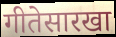
गीतेसारखा